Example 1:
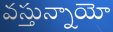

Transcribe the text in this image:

వస్తున్నాయో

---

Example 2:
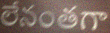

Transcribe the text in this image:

లేనంతగా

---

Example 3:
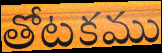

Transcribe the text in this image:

తోటకము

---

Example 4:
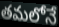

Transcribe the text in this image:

తమలోనే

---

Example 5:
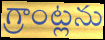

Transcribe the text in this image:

గ్రాంట్లను